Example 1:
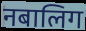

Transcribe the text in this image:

नबालिग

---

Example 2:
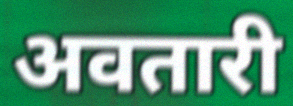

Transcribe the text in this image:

अवतारी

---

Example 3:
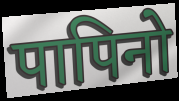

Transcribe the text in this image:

पापिनो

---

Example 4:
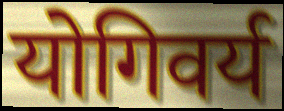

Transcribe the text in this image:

योगिवर्य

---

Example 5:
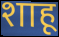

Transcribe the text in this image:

शाहू